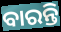
ବାରନ୍ତି